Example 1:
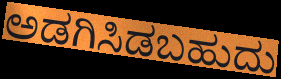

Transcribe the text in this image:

ಅಡಗಿಸಿಡಬಹುದು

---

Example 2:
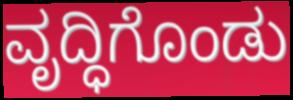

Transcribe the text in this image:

ವೃದ್ಧಿಗೊಂಡು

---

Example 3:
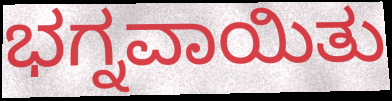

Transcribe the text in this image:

ಭಗ್ನವಾಯಿತು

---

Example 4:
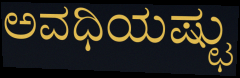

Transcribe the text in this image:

ಅವಧಿಯಷ್ಟು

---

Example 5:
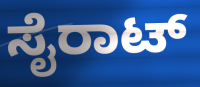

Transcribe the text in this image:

ಸೈರಾಟ್